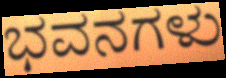
ಭವನಗಳು